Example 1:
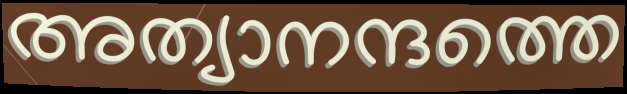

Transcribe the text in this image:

അത്യാനന്ദത്തെ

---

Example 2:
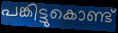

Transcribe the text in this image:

പങ്കിട്ടുകൊണ്ട്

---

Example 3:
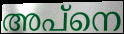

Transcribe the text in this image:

അപ്നെ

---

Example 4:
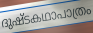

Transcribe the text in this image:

ദുഷ്ടകഥാപാത്രം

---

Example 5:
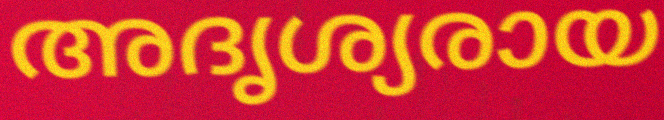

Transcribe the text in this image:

അദൃശ്യരായ